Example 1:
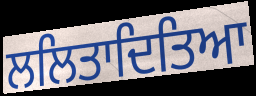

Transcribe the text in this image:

ਲਲਿਤਾਦਿਤਿਆ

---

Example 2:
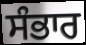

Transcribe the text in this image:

ਸੰਭਾਰ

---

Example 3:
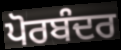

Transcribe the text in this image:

ਪੋਰਬੰਦਰ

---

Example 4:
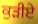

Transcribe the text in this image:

ਕੁੜੀਏ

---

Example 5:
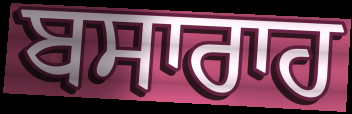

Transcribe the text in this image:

ਬਸਾਰਾਹ